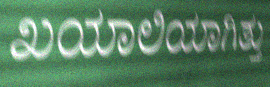
ಖಯಾಲಿಯಾಗಿತ್ತು